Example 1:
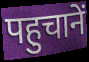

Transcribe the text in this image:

पहुचानें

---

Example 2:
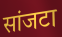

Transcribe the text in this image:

सांजटा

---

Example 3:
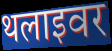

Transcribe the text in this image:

थलाइवर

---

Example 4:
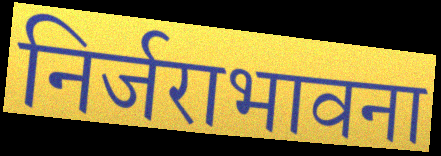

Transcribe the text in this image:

निर्जराभावना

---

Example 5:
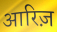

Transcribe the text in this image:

आरिज़